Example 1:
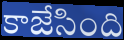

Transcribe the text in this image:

కాజేసింది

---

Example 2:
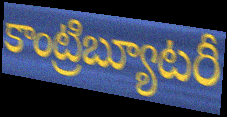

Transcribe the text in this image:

కాంట్రిబ్యూటరీ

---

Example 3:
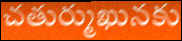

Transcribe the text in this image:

చతుర్ముఖునకు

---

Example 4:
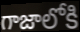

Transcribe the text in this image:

గాజాలోకి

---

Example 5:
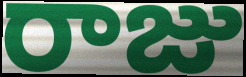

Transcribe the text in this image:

రాజు